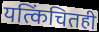
यत्किंचितही